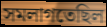
সমলাগতেছিল